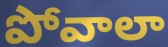
పోవాలా